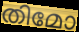
തിമോ